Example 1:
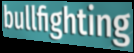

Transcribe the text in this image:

bullfighting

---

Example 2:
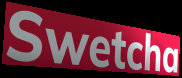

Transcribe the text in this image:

Swetcha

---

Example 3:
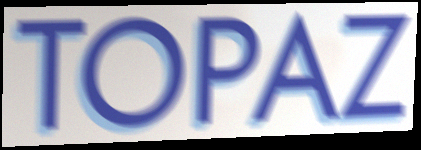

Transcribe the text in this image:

TOPAZ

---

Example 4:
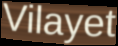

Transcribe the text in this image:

Vilayet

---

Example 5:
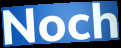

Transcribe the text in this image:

Noch